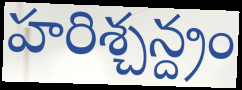
హరిశ్చన్ద్రం